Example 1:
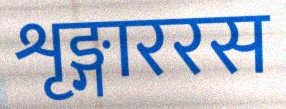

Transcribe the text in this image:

शृङ्गाररस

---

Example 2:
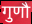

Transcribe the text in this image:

गुणौ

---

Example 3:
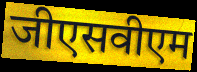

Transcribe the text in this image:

जीएसवीएम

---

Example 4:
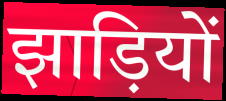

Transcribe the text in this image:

झाड़ियों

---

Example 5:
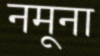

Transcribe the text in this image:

नमूना